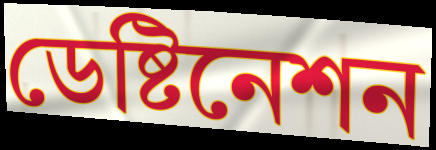
ডেষ্টিনেশন